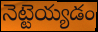
నెట్టెయ్యడం